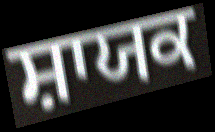
ਸ਼ਾਯਕ